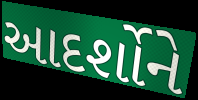
આદર્શોને